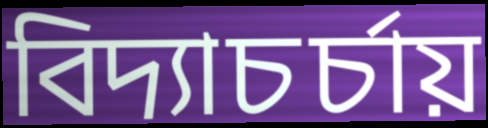
বিদ্যাচর্চায়